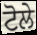
ਟੋਲੇ